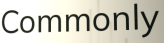
Commonly